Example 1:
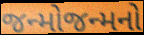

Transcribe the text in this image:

જન્મોજન્મનો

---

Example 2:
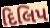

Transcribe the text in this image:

દિલિપ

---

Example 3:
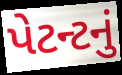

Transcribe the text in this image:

પેટન્ટનું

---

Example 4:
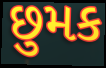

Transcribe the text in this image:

છુમક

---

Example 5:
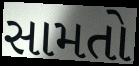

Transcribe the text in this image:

સામતો